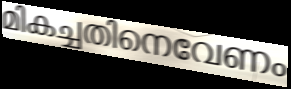
മികച്ചതിനെവേണം